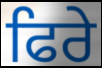
ਫਿਰੇ